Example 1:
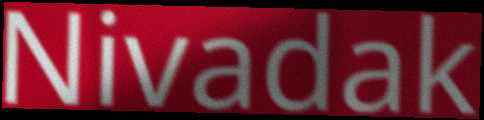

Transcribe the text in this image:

Nivadak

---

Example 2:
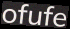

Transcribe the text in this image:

ofufe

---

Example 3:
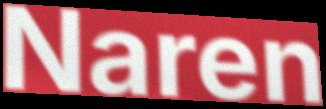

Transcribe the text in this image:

Naren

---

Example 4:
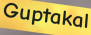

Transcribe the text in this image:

Guptakal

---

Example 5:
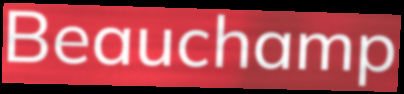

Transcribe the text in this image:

Beauchamp